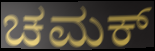
ಚಮಕ್